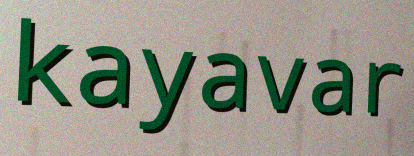
kayavar